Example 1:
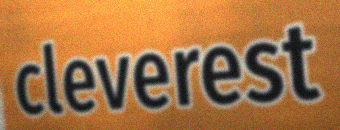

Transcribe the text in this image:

cleverest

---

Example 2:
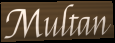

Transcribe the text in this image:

Multan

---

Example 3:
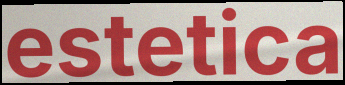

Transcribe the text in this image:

estetica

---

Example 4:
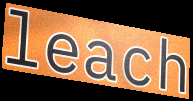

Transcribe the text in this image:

leach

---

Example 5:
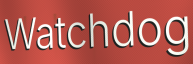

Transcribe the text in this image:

Watchdog